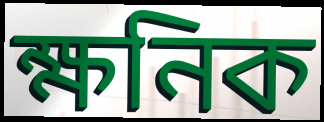
ক্ষনিক